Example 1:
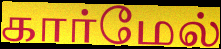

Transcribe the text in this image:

கார்மேல்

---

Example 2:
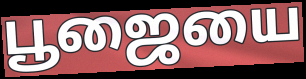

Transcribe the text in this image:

பூஜையை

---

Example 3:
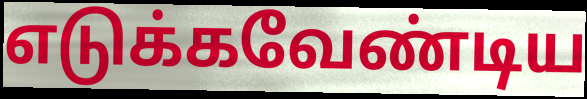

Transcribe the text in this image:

எடுக்கவேண்டிய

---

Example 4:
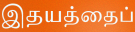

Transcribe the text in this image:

இதயத்தைப்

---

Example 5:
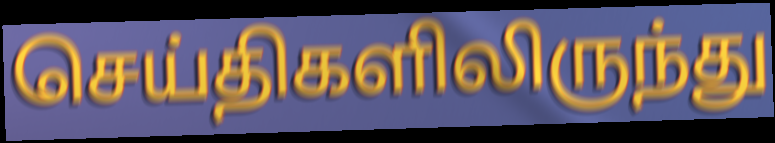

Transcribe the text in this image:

செய்திகளிலிருந்து